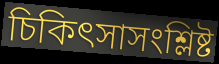
চিকিৎসাসংশ্লিষ্ট